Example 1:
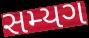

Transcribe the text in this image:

સમ્યગ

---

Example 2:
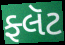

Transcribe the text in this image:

ફ્લૅટ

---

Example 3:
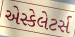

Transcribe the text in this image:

એસ્કેલેટર્સ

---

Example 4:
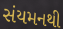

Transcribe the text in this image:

સંયમનથી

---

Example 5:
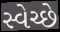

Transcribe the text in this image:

સ્વેચ્છે